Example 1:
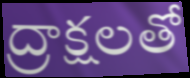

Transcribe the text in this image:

ద్రాక్షలతో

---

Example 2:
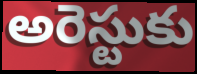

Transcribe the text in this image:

అరెస్టుకు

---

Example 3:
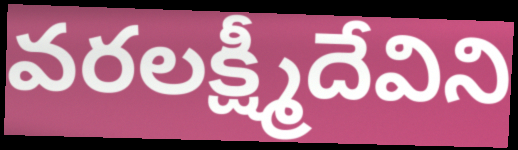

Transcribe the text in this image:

వరలక్ష్మీదేవిని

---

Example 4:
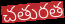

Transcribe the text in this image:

చతురత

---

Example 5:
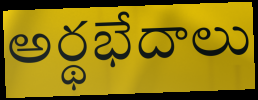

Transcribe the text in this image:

అర్థభేదాలు